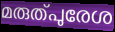
മരുത്പുരേശ